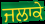
ਜਲਾਕੇ